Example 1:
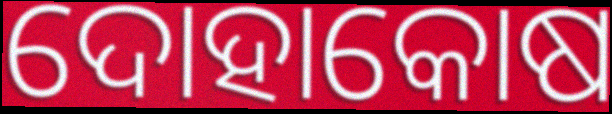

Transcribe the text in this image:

ଦୋହାକୋଷ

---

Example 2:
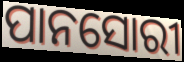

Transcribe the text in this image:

ପାନସୋରୀ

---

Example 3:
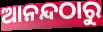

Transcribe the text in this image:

ଆନନ୍ଦଠାରୁ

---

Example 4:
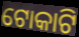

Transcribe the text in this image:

ଟୋକାଟି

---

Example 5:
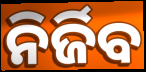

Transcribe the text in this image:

ନିର୍ଜିବ